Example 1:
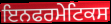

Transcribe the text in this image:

ਇਨਫਰਮੇਟਿਕਸ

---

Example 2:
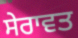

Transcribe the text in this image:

ਸੇਰਾਵਤ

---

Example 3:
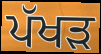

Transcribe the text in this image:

ਪੱਖੜ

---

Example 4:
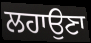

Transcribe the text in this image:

ਲਹਾਉਣਾ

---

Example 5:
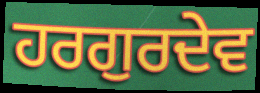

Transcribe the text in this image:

ਹਰਗੁਰਦੇਵ